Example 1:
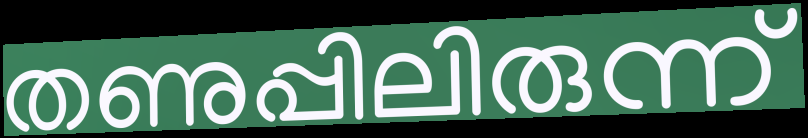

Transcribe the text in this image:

തണുപ്പിലിരുന്ന്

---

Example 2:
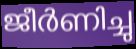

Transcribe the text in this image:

ജീർണിച്ചു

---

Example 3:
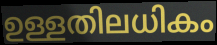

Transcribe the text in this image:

ഉള്ളതിലധികം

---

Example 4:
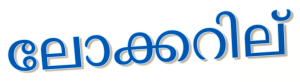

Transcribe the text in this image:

ലോക്കറില്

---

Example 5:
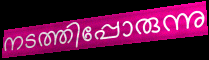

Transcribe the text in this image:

നടത്തിപ്പോരുന്നു